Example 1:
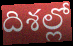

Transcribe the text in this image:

దిశల్లో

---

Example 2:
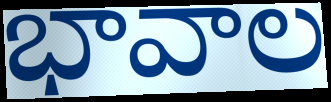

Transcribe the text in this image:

భావాల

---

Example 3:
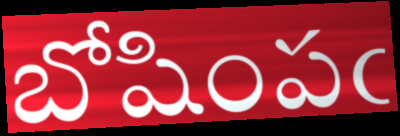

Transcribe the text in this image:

బోషింపఁ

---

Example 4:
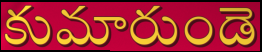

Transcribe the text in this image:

కుమారుండె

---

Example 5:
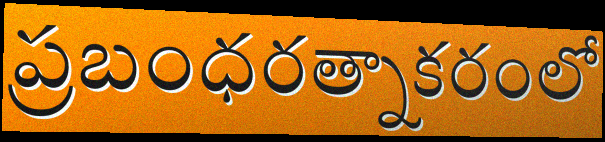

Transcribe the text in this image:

ప్రబంధరత్నాకరంలో